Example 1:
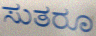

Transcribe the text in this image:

ಸುತರೂ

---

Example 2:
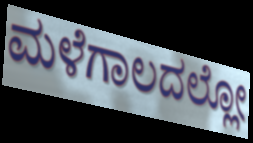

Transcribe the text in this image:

ಮಳೆಗಾಲದಲ್ಲೋ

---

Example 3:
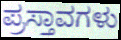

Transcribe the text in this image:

ಪ್ರಸ್ತಾವಗಳು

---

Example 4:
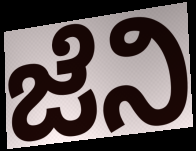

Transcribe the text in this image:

ಜೆನಿ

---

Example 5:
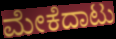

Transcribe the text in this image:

ಮೇಕೆದಾಟು